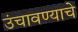
उंचावण्याचे